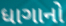
ધાગાનો